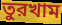
তুরখাম